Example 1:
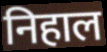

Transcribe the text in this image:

निहाल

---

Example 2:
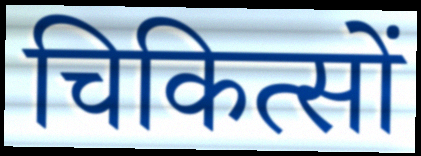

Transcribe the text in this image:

चिकित्सों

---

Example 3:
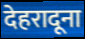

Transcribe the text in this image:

देहरादूना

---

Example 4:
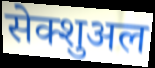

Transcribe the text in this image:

सेक्शुअल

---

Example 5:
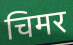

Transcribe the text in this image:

चिमर